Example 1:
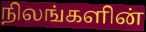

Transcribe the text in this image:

நிலங்களின்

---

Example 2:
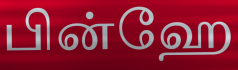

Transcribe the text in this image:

பின்ஹே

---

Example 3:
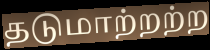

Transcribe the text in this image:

தடுமாற்றற்ற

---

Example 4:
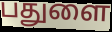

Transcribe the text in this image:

பதுளை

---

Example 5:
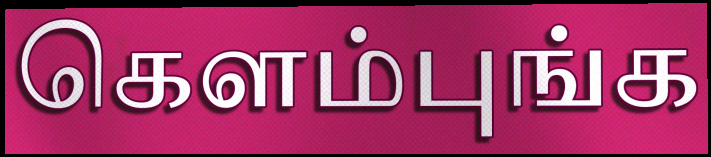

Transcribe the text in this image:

கெளம்புங்க